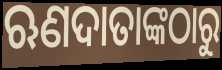
ଋଣଦାତାଙ୍କଠାରୁ